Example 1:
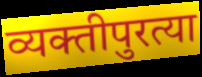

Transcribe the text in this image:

व्यक्तीपुरत्या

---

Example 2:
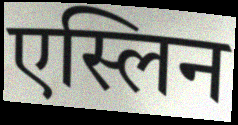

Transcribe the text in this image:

एस्लिन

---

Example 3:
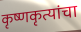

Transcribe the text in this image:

कृष्णकृत्यांचा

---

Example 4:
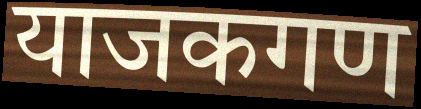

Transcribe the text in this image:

याजकगण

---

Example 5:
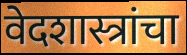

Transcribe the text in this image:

वेदशास्त्रांचा